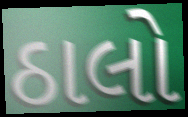
ઠાલો